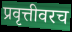
प्रवृत्तीवरच